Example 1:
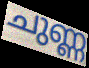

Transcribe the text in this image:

ചുണ്ണ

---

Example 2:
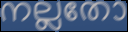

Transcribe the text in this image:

നല്ലതോ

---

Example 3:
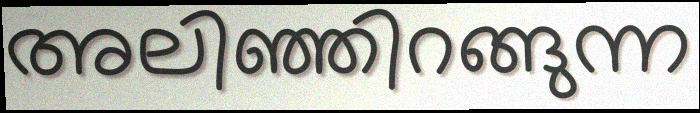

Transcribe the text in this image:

അലിഞ്ഞിറങ്ങുന്ന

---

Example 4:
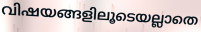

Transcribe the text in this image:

വിഷയങ്ങളിലൂടെയല്ലാതെ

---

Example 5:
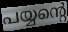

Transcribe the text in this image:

പയ്യന്റെ